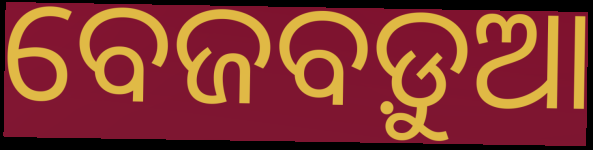
ବେଜବଡ଼ୁଆ